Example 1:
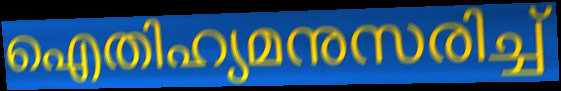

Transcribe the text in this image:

ഐതിഹ്യമനുസരിച്ച്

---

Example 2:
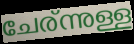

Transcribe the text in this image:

ചേര്ന്നുള്ള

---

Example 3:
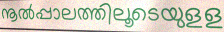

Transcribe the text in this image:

നൂൽപ്പാലത്തിലൂടെയുളള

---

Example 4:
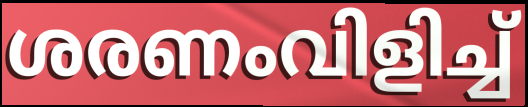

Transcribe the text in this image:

ശരണംവിളിച്ച്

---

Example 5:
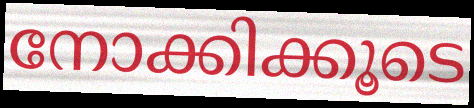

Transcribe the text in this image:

നോക്കിക്കൂടെ